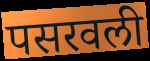
पसरवली